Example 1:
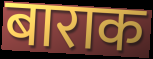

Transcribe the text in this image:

बाराक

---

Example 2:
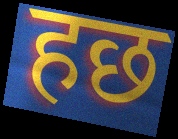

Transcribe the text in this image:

हछ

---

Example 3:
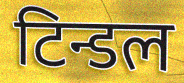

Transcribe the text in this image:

टिन्डल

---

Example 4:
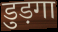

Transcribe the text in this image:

डुड़गा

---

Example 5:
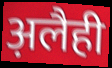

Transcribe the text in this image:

अ़लैही